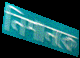
নিশানকে